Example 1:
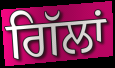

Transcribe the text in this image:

ਗਿੱਲਾਂ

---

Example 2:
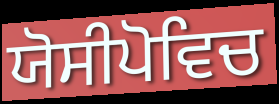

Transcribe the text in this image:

ਯੋਸੀਪੋਵਿਚ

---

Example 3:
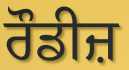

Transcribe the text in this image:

ਰੌਡੀਜ਼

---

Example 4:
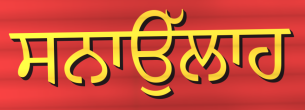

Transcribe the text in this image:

ਸਨਾਉੱਲਾਹ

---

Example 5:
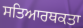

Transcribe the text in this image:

ਸਤਿਆਰਥਕਤਾ